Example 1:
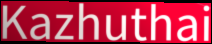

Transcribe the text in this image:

Kazhuthai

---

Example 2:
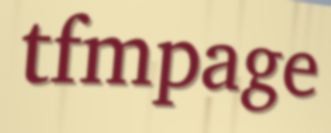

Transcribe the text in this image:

tfmpage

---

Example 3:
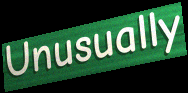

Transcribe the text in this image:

Unusually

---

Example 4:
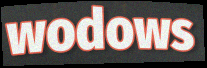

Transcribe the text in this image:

wodows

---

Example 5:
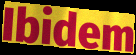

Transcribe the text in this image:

Ibidem